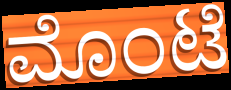
ಮೊಂಟೆ